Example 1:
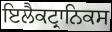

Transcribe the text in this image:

ਇਲੈਕਟ੍ਰਾਨਿਕਸ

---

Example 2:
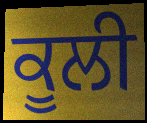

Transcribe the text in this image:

ਕੂਲੀ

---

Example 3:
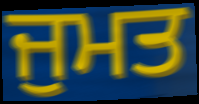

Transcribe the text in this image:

ਜੁਮਤ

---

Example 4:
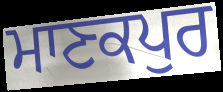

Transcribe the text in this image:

ਮਾਣਕਪੁਰ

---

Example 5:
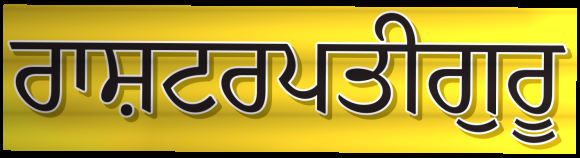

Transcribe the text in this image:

ਰਾਸ਼ਟਰਪਤੀਗੁਰੂ